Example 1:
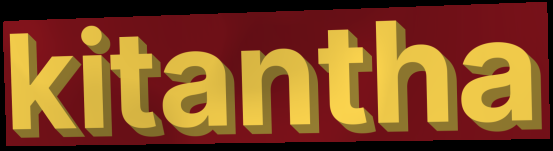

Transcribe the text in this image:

kitantha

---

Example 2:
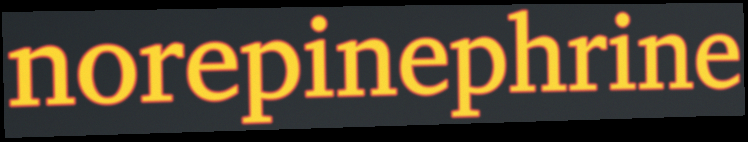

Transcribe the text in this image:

norepinephrine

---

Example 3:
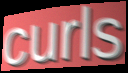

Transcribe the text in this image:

curls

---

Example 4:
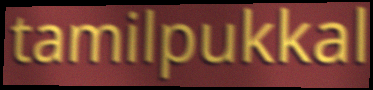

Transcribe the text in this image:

tamilpukkal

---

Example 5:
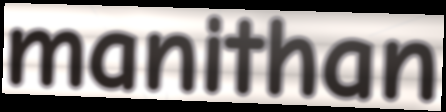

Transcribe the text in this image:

manithan